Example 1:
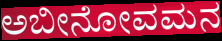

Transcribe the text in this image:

ಅಬೀನೋವಮನ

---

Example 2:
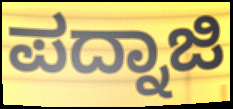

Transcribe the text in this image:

ಪದ್ನಾಜಿ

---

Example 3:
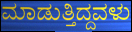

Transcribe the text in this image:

ಮಾಡುತ್ತಿದ್ದವಳು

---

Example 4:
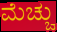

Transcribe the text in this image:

ಮೆಚ್ಚು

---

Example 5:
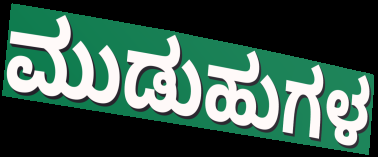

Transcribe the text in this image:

ಮುಡುಹುಗಳ